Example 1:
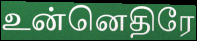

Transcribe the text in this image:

உன்னெதிரே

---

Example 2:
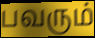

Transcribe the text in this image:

பவரும்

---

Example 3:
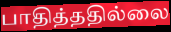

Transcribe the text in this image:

பாதித்ததில்லை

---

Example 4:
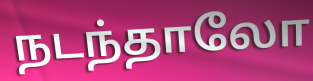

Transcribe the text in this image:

நடந்தாலோ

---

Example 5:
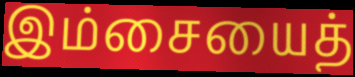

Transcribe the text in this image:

இம்சையைத்